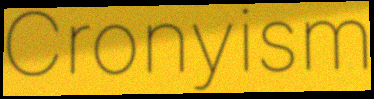
Cronyism